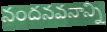
నందనవనాన్ని